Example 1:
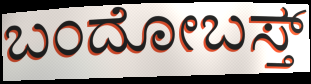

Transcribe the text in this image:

ಬಂದೋಬಸ್ತ್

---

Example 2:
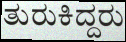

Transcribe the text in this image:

ತುರುಕಿದ್ದರು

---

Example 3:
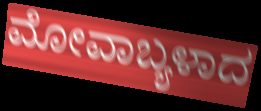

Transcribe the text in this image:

ಮೋವಾಬ್ಯಳಾದ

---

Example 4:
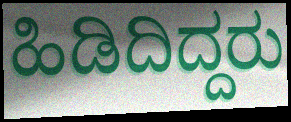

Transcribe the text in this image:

ಹಿಡಿದಿದ್ದರು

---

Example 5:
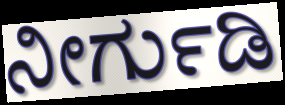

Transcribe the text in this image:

ನೀರ್ಗುಡಿ